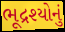
ભૂદ્રશ્યોનું